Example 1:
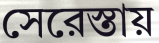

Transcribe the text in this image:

সেরেস্তায়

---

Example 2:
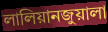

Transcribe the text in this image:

লালিয়ানজুয়ালা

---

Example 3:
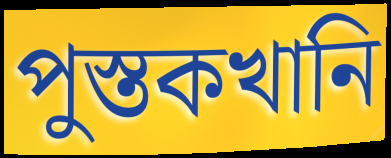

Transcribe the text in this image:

পুস্তকখানি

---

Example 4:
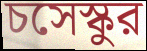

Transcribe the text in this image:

চসেস্কুর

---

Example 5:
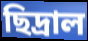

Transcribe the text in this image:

ছিদ্রাল